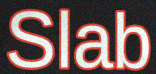
Slab